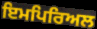
ਇਮਪਿਰਿਅਲ